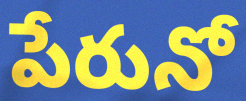
పేరునో